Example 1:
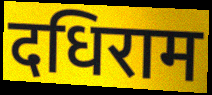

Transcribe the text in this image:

दधिराम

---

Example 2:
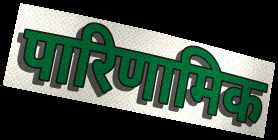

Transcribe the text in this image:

पारिणामिक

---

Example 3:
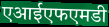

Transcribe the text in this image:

एआईएफएमडी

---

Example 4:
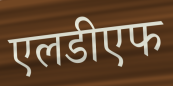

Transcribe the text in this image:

एलडीएफ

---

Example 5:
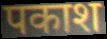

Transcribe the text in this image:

पकाश